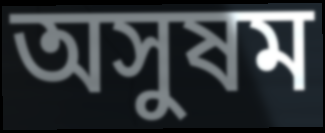
অসুষম